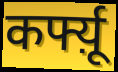
कर्फ्य़ू